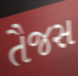
તૈજસ